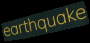
earthquake